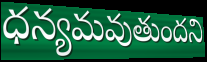
ధన్యమవుతుందని